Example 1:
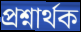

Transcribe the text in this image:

প্ৰশ্নাৰ্থক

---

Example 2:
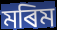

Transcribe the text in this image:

মৰিম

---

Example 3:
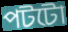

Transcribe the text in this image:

পটটো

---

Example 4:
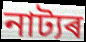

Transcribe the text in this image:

নাট্যৰ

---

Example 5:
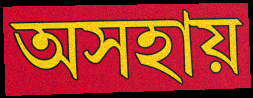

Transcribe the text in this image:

অসহায়